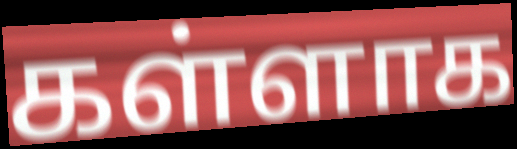
கள்ளாக